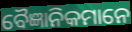
ବୈଜ୍ଞାନିକମାନେ